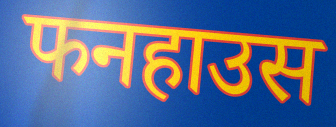
फनहाउस